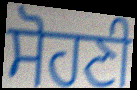
ਸੋਹਣੀ